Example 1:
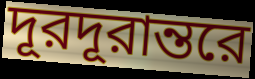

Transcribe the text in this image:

দূরদূরান্তরে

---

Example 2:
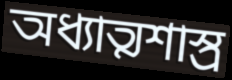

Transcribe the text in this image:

অধ্যাত্মশাস্ত্র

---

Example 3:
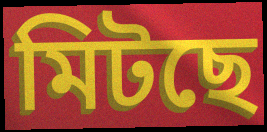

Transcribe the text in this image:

মিটছে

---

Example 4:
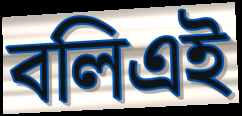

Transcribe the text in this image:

বলিএই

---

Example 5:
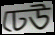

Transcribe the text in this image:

ঢেউ